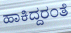
ಹಾಕಿದ್ದರಂತೆ